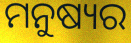
ମନୁଷ୍ୟର